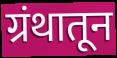
ग्रंथातून